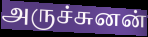
அருச்சுனன்